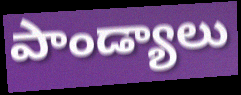
పాండ్యాలు